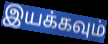
இயக்கவும்